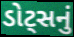
ડોટ્સનું